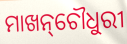
ମାଖନ୍‌ଚୌଧୁରୀ